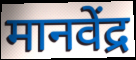
मानवेंद्र